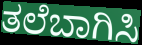
ತಲೆಬಾಗಿಸಿ